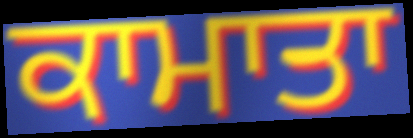
ਕਾਮਾਤਾ